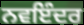
ਨਵਇੰਦਰ